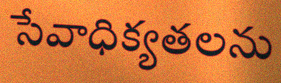
సేవాధిక్యతలను